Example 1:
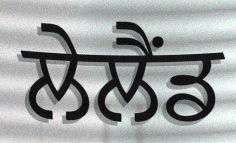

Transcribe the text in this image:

ਲੇਲੈਂਡ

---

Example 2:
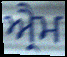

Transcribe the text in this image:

ਐ੍ਰਮ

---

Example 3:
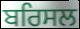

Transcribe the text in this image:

ਬਰਿਸਲ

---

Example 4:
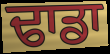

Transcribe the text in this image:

ਢਾਡਾ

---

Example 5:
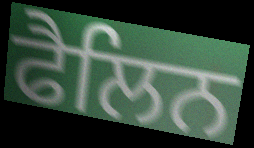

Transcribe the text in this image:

ਫੈਲਿਨ